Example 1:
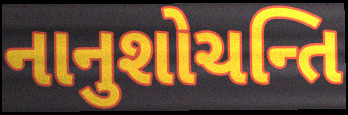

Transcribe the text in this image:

નાનુશોચન્તિ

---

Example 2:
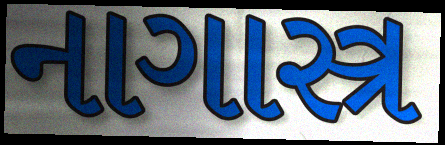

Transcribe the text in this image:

નાગાસ્ત્ર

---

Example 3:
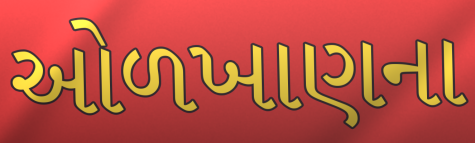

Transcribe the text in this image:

ઓળખાણના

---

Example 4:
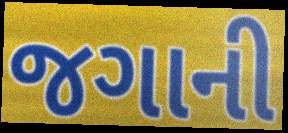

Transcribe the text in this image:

જગાની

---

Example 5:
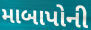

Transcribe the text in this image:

માબાપોની